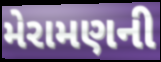
મેરામણની